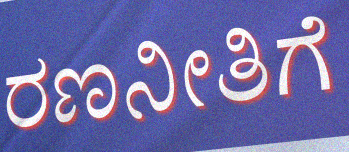
ರಣನೀತಿಗೆ